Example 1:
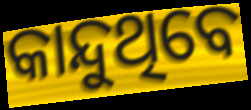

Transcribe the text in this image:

କାନ୍ଦୁଥିବେ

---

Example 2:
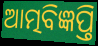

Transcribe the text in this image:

ଆତ୍ମବିଜ୍ଞପ୍ତି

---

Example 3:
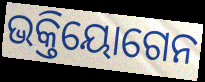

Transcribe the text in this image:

ଭକ୍ତିୟୋଗେନ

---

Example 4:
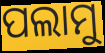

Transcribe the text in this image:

ପଲାମୁ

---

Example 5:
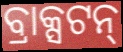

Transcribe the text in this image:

ବ୍ରାକ୍ସଟନ୍